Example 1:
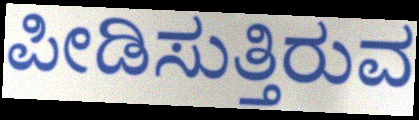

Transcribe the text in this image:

ಪೀಡಿಸುತ್ತಿರುವ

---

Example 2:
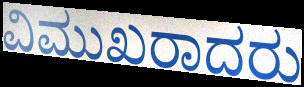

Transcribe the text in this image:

ವಿಮುಖರಾದರು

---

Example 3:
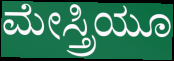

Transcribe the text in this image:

ಮೇಸ್ತ್ರಿಯೂ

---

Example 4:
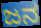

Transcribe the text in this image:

ಜನ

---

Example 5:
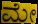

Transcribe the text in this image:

ಮೇ